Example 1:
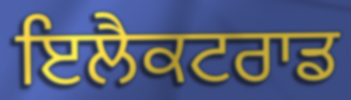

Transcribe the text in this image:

ਇਲੈਕਟਰਾਡ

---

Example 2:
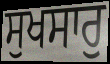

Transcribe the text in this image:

ਸੁਖਸਾਰੁ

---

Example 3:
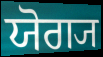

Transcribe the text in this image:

ਯੋਗ੍ਯ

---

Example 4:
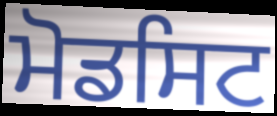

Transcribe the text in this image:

ਮੋਡਸਿਟ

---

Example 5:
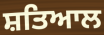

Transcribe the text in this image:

ਸ਼ਤਿਆਲ